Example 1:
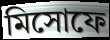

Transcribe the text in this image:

মিসোফে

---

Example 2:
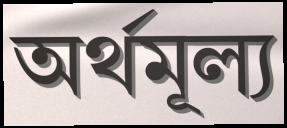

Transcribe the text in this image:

অর্থমূল্য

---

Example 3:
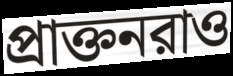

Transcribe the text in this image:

প্রাক্তনরাও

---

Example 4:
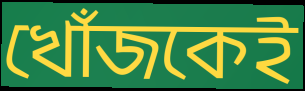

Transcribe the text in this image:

খোঁজকেই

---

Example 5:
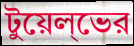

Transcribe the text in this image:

টুয়েল্ভের